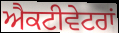
ਐਕਟੀਵੇਟਰਾਂ